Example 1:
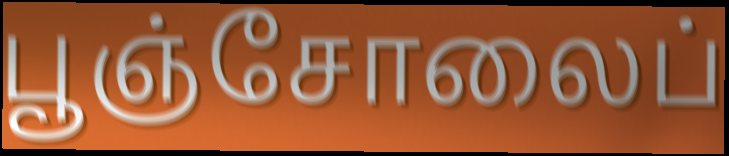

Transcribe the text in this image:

பூஞ்சோலைப்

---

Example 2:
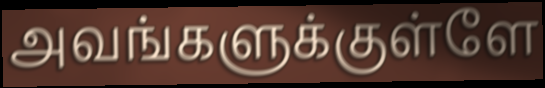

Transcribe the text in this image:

அவங்களுக்குள்ளே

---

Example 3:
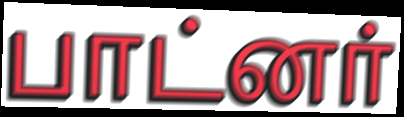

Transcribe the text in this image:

பாட்னர்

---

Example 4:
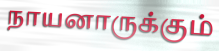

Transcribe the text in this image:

நாயனாருக்கும்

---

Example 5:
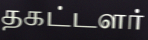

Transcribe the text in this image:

தகட்டளர்